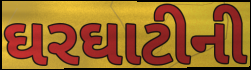
ઘરઘાટીની